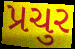
પ્રચુર